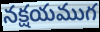
నక్షయముగ